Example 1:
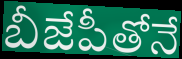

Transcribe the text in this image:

బీజేపీతోనే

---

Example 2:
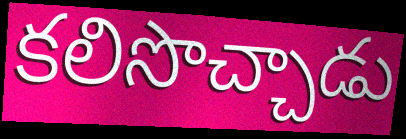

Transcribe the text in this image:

కలిసొచ్చాడు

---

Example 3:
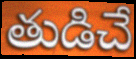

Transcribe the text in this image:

తుడిచే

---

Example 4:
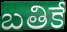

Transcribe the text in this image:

బతికే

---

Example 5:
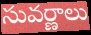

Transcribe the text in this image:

సువర్ణాలు